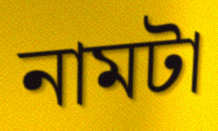
নামটা